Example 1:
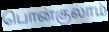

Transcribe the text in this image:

பொன்குலாம்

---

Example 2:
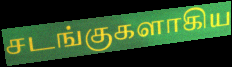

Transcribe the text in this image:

சடங்குகளாகிய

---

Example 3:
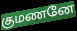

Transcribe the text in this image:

குமணனே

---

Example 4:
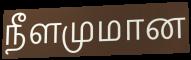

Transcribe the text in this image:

நீளமுமான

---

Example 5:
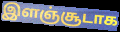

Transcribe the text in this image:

இளஞ்சூடாக